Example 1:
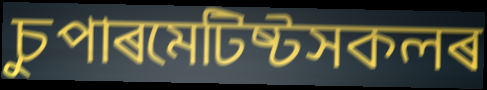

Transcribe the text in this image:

চুপাৰমেটিষ্টসকলৰ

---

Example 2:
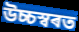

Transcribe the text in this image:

উচ্চস্বৰত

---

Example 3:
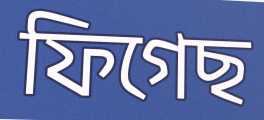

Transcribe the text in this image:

ফিগেছ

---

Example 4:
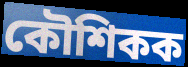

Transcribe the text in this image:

কৌশিকক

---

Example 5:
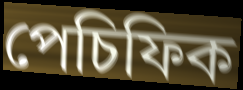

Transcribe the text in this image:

পেচিফিক